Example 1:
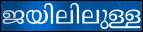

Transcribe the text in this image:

ജയിലിലുള്ള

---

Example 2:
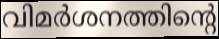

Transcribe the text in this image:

വിമർശനത്തിന്റെ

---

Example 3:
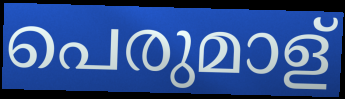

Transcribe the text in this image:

പെരുമാള്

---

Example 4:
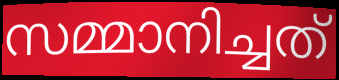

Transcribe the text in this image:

സമ്മാനിച്ചത്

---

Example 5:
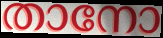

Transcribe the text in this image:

താനോ